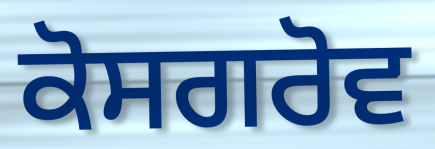
ਕੋਸਗਰੋਵ